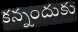
కన్నందుకు